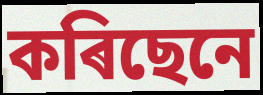
কৰিছেনে